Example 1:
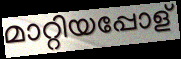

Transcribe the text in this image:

മാറ്റിയപ്പോള്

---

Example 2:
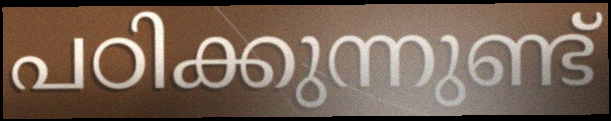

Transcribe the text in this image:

പഠിക്കുന്നുണ്ട്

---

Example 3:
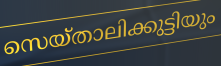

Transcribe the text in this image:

സെയ്താലിക്കുട്ടിയും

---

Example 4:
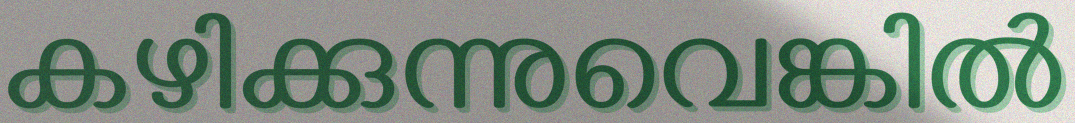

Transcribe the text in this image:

കഴിക്കുന്നുവെങ്കിൽ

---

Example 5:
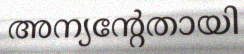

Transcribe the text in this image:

അന്യന്റേതായി